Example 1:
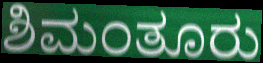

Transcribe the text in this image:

ಶಿಮಂತೂರು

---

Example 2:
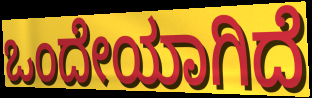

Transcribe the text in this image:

ಒಂದೇಯಾಗಿದೆ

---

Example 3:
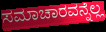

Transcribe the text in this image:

ಸಮಾಚಾರವನ್ನೆಲ್ಲ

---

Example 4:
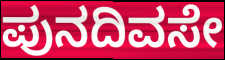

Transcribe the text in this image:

ಪುನದಿವಸೇ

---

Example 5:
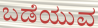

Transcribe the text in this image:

ಬಡೆಯುವ